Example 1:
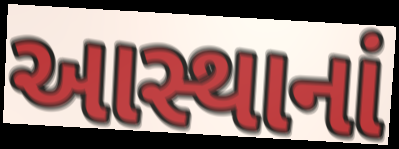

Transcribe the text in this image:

આસ્થાનાં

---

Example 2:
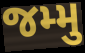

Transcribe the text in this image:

જમ્મુ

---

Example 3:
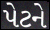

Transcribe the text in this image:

પેટને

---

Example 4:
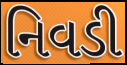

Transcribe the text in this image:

નિવડી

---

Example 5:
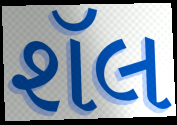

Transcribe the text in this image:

શૅલ